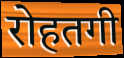
रोहतगी